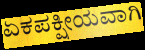
ಏಕಪಕ್ಷೀಯವಾಗಿ